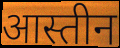
आस्तीन